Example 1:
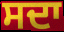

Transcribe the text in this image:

ਸਦਾ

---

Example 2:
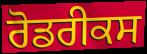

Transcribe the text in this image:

ਰੋਡਰੀਕਸ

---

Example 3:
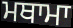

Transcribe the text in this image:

ਮਥਾਮਾ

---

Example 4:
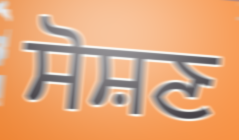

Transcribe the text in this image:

ਸੋਸ਼ਣ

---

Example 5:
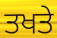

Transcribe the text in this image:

ਤਖਤੇ